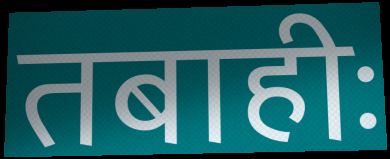
तबाहीः